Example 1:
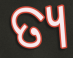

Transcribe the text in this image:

ତ୍ୟ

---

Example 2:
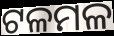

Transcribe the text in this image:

ଟଳମଳ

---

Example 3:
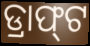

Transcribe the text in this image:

ଡ୍ରାଫ୍‌ଟ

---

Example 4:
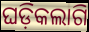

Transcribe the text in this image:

ଘଡ଼ିକଲାଗି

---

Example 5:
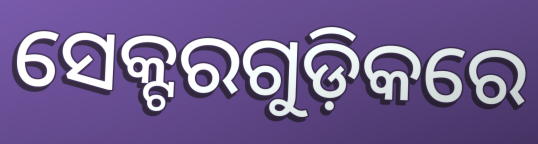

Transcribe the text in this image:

ସେକ୍ଟରଗୁଡ଼ିକରେ